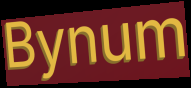
Bynum